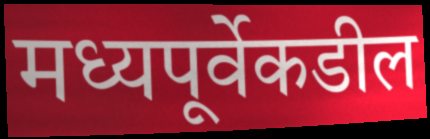
मध्यपूर्वेकडील